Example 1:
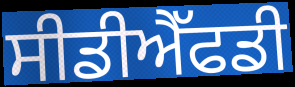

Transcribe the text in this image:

ਸੀਡੀਐੱਫਡੀ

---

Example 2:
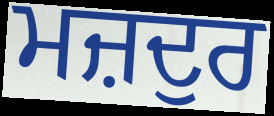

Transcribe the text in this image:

ਮਜ਼ਦੁਰ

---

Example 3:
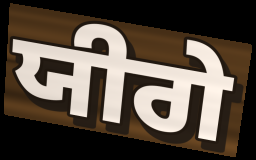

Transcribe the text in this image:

ਯੀਗੇ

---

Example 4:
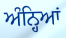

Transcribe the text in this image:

ਅੰਨ੍ਹਿਆਂ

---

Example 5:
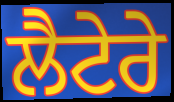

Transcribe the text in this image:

ਲੈਟੇਰੇ